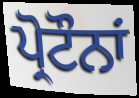
ਪ੍ਰੋਟੌਨਾਂ